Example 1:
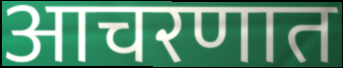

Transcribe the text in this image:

आचरणात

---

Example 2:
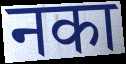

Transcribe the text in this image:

नका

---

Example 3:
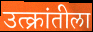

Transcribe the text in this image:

उत्क्रांतीला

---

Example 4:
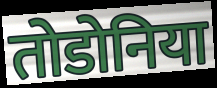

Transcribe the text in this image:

तोडोनिया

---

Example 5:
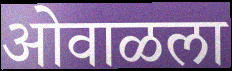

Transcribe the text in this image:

ओवाळला